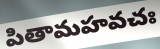
పితామహవచః